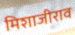
मिशाजीराव